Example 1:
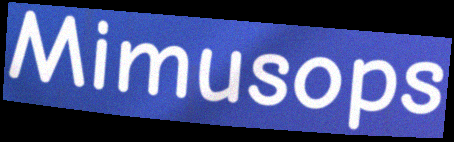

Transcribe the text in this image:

Mimusops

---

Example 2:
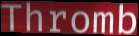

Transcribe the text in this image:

Thromb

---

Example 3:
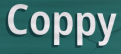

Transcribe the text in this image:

Coppy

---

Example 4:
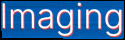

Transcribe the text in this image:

Imaging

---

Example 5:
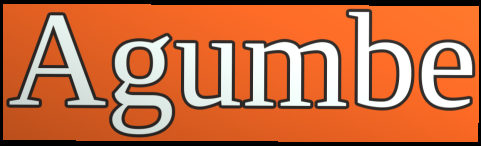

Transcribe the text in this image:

Agumbe